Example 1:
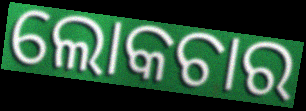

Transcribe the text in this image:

ଲୋକଚାର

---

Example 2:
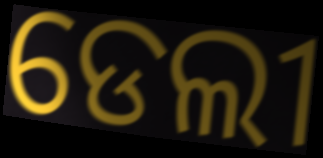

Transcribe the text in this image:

ଡେଲୀ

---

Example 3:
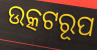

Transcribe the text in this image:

ଉତ୍କଟରୂପ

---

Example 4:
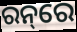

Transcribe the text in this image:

ରନ୍‌ରେ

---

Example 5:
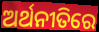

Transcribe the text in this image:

ଅର୍ଥନୀତିରେ